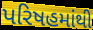
પરિષહમાંથી